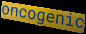
oncogenic